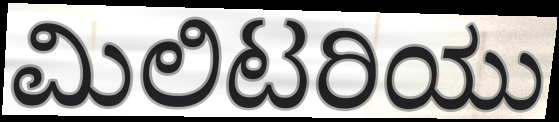
ಮಿಲಿಟರಿಯು